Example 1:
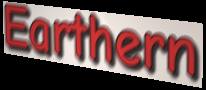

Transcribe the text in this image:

Earthern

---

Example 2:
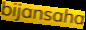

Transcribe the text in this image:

bijansaha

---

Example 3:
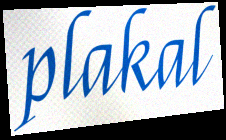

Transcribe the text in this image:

plakal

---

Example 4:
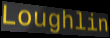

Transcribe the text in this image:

Loughlin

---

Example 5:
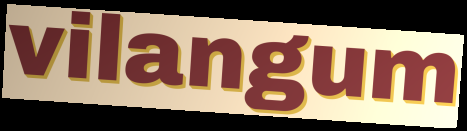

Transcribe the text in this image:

vilangum